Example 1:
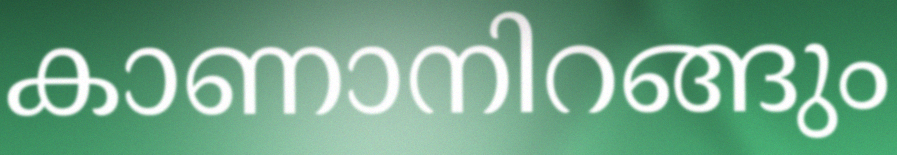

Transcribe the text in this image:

കാണാനിറങ്ങും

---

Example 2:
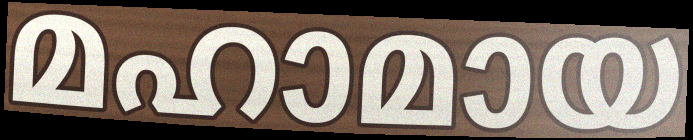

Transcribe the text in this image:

മഹാമായ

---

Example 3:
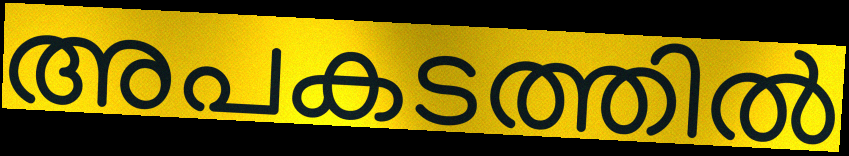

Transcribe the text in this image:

അപകടത്തിൽ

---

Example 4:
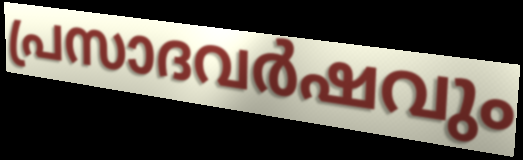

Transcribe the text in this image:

പ്രസാദവർഷവും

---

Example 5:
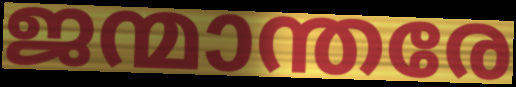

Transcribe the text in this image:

ജന്മാന്തരേ